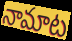
నామాట